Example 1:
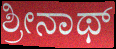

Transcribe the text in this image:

ಶ್ರೀನಾಥ್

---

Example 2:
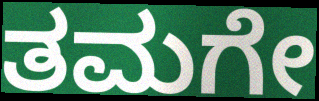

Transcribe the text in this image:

ತಮಗೇ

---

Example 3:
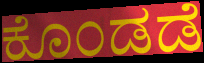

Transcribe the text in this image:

ಕೊಂಡಡೆ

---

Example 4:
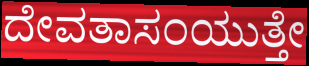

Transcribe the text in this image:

ದೇವತಾಸಂಯುತ್ತೇ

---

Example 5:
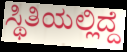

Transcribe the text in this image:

ಸ್ಥಿತಿಯಲ್ಲಿದ್ದೆ